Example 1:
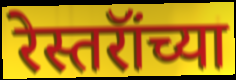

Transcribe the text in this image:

रेस्तरॉंच्या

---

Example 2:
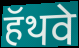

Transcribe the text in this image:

हॅथवे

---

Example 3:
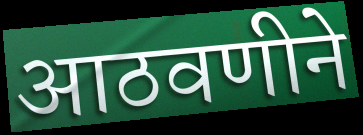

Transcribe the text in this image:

आठवणीने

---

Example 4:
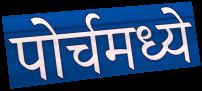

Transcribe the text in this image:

पोर्चमध्ये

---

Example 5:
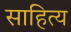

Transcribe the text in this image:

साहित्य